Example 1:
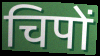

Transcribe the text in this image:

चिपों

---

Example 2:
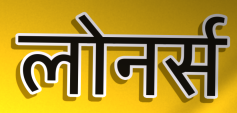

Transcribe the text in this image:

लोनर्स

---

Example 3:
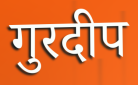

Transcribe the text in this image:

गुरदीप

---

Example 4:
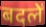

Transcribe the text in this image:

बदलें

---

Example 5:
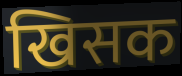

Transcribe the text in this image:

खिसक